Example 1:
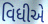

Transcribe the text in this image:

વિધીએ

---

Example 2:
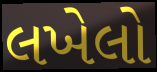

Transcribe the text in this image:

લખેલો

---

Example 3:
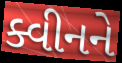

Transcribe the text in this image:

ક્વીનને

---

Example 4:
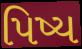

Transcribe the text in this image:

પિષ્ય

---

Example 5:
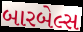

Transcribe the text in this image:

બારબેલ્સ